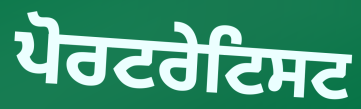
ਪੋਰਟਰੇਟਿਸਟ